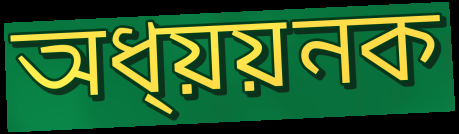
অধ্য়য়নক